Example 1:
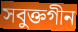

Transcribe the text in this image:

সবুক্তগীন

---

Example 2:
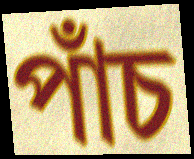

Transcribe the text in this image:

পাঁচ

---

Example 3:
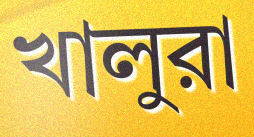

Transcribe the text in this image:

খালুরা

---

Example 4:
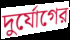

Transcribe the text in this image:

দুর্যোগের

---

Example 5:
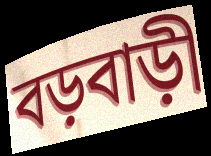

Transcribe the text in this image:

বড়বাড়ী